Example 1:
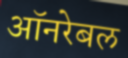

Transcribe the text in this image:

ऑनरेबल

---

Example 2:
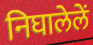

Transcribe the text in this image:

निघालेलें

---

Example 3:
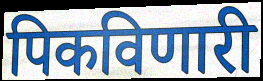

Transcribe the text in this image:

पिकविणारी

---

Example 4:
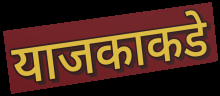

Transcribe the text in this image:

याजकाकडे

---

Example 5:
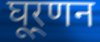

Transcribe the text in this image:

घूर्णन